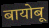
बायोबू